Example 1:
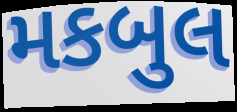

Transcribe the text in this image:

મકબુલ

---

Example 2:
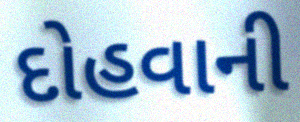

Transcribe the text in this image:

દોહવાની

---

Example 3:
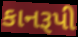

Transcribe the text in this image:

કાનરૂપી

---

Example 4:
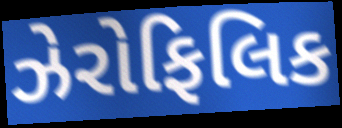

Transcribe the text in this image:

ઝેરોફિલિક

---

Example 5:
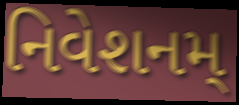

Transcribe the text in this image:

નિવેશનમ્